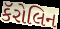
કૅરોલિન